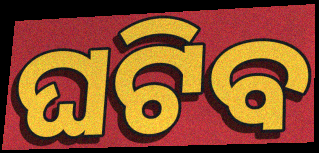
ଘଟିବ